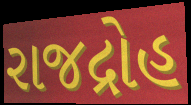
રાજદ્રોહ